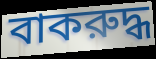
বাকরুদ্ধ